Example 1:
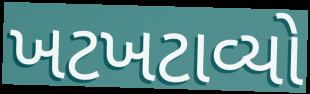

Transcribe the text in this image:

ખટખટાવ્યો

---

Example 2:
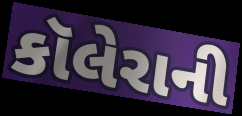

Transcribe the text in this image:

કૉલેરાની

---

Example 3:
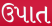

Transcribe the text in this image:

ઉપાત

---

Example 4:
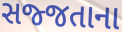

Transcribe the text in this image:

સજ્જતાના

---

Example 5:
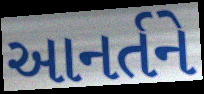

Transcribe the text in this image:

આનર્તને